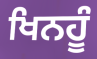
ਖਿਨਹੂੰ